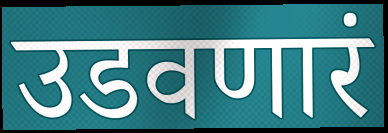
उडवणारं